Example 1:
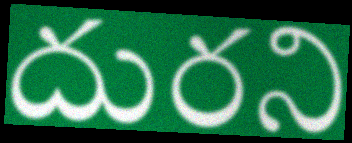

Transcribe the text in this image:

దురని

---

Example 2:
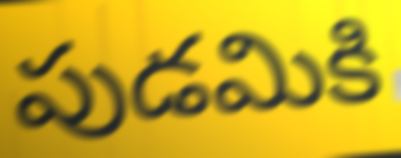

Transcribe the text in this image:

పుడమికి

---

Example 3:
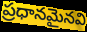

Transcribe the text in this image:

ప్రధానమైనవి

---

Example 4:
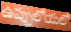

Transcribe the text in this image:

ఉప్పులోయలో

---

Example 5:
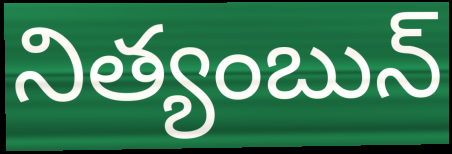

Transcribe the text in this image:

నిత్యంబున్